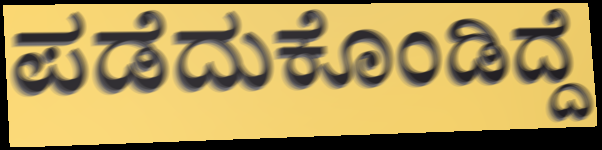
ಪಡೆದುಕೊಂಡಿದ್ದೆ